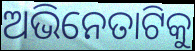
ଅଭିନେତାଟିକୁ